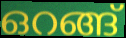
ഒറങ്ങ്